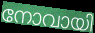
നോവായി